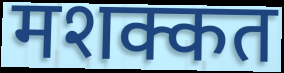
मशक्कत